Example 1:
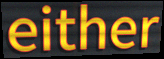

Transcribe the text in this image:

either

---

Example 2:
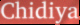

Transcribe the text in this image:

Chidiya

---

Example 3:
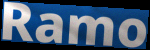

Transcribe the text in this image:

Ramo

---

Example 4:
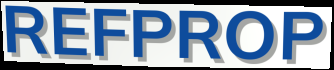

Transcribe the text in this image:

REFPROP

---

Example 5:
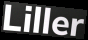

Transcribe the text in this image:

Liller